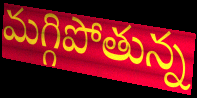
మగ్గిపోతున్న